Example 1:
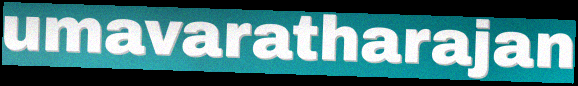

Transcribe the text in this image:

umavaratharajan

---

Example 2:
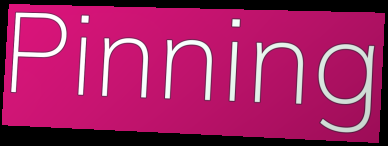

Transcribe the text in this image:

Pinning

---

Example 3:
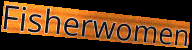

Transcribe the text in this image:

Fisherwomen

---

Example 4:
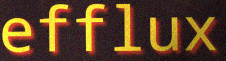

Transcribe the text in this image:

efflux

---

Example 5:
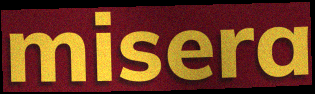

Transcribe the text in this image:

misera